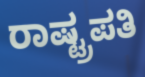
ರಾಷ್ಟ್ರಪತಿ